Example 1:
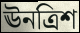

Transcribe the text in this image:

ঊনত্রিশ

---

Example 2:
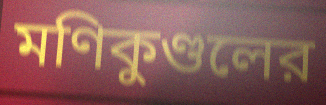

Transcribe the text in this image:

মণিকুণ্ডলের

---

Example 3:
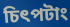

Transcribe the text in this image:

চিৎপটাং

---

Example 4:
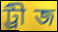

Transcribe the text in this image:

ট্রীজ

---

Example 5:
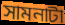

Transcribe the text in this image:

সামনাটা